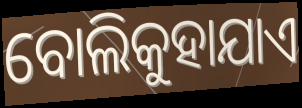
ବୋଲିକୁହାଯାଏ